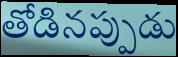
తోడినప్పుడు